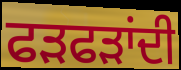
ਫੜਫੜਾਂਦੀ